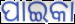
ପାଇକା